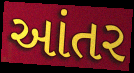
આંતર